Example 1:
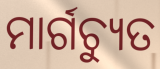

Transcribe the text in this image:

ମାର୍ଗଚ୍ୟୁତ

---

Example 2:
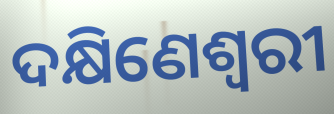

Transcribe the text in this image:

ଦକ୍ଷିଣେଶ୍ଵରୀ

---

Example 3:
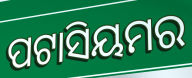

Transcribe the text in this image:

ପଟାସିୟମର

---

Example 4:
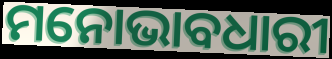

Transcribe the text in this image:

ମନୋଭାବଧାରୀ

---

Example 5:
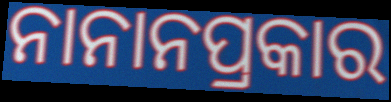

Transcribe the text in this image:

ନାନାନପ୍ରକାର